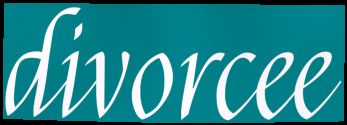
divorcee